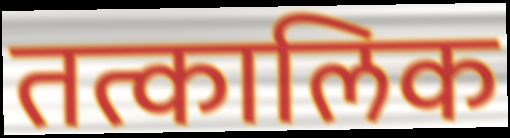
तत्कालिक